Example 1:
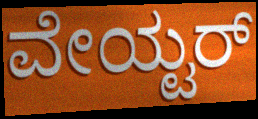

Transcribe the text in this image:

ವೇಯ್ಟರ್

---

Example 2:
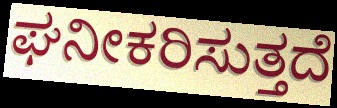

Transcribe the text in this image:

ಘನೀಕರಿಸುತ್ತದೆ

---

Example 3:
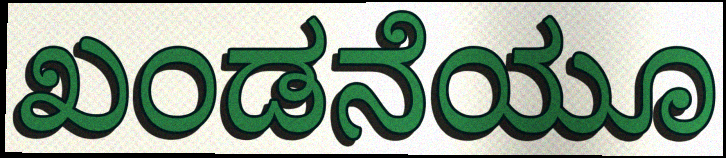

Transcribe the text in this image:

ಖಂಡನೆಯೂ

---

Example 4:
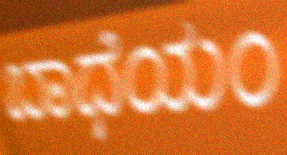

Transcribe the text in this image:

ಬಾಧೆಯಂ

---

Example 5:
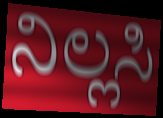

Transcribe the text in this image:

ನಿಲ್ಲಸಿ